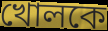
খোলকে